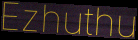
Ezhuthu